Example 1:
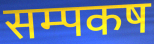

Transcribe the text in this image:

सम्पकष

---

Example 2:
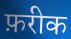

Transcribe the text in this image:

फ़रीक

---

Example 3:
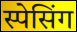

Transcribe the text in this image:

स्पेसिंग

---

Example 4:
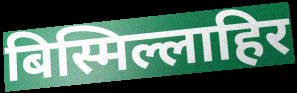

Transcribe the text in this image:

बिस्मिल्लाहिर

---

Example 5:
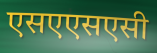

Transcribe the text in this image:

एसएएसएसी